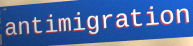
antimigration